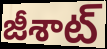
జీశాట్